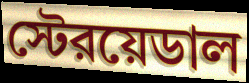
স্টেরয়েডাল